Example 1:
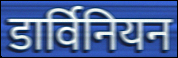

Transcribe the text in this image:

डार्विनियन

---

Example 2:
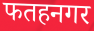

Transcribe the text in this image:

फतहनगर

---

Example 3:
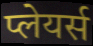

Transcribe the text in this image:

प्लेयर्स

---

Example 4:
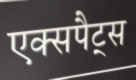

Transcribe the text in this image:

एक्सपैट्स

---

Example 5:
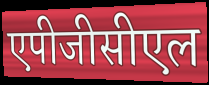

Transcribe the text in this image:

एपीजीसीएल